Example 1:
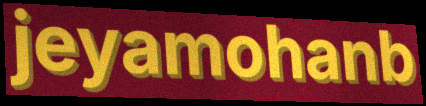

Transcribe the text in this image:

jeyamohanb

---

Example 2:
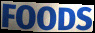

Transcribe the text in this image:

FOODS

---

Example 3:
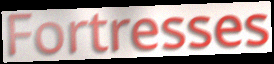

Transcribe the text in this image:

Fortresses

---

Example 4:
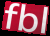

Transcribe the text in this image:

fbl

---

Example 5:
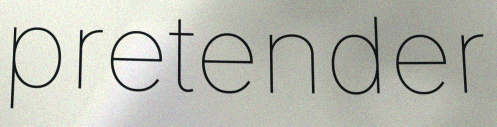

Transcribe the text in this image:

pretender